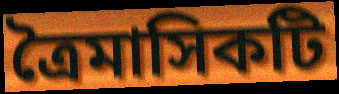
ত্রৈমাসিকটি